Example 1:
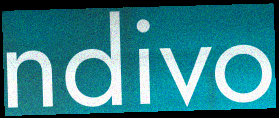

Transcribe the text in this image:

ndivo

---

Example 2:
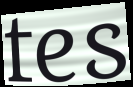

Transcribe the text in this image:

tes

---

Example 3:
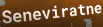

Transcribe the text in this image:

Seneviratne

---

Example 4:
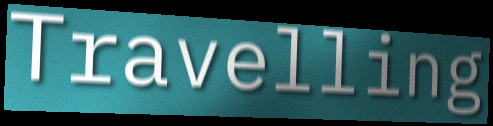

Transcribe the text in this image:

Travelling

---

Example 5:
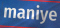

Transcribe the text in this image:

maniye